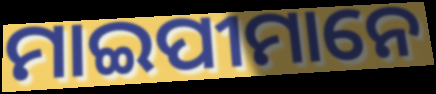
ମାଇପୀମାନେ